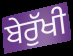
ਬੇਰੁੱਖੀ